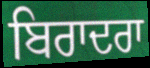
ਬਿਰਾਦਰਾ